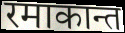
रमाकान्त